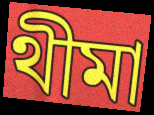
থীমা